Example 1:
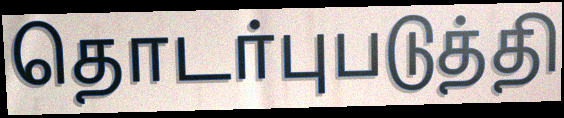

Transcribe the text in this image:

தொடர்புபடுத்தி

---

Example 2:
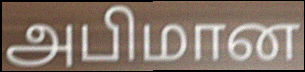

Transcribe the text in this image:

அபிமான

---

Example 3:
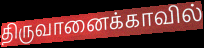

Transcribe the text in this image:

திருவானைக்காவில்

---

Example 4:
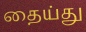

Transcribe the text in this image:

தைய்து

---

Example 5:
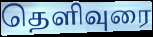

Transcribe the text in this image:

தெளிவுரை